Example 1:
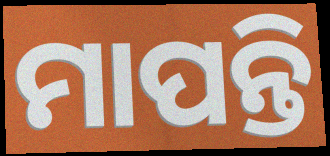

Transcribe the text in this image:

ମାପନ୍ତି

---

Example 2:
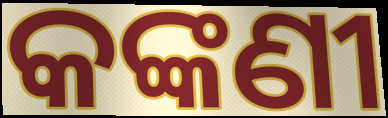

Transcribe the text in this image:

କଙ୍କଣୀ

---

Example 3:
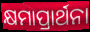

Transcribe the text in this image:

କ୍ଷମାପ୍ରାର୍ଥନା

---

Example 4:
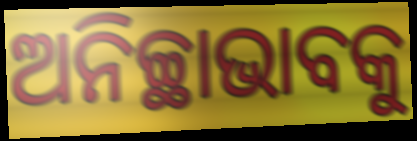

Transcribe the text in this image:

ଅନିଚ୍ଛାଭାବକୁ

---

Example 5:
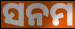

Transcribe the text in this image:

ସନମ